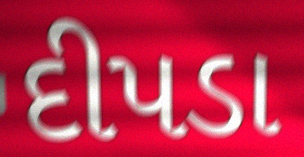
દીપડા